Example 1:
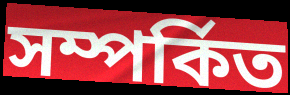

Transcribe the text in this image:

সম্পৰ্কিত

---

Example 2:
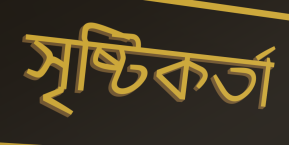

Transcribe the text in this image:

সৃষ্টিকৰ্তা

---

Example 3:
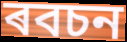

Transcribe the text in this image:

ৰবচন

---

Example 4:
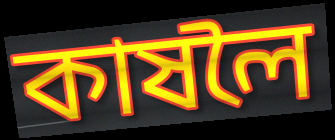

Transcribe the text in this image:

কাষলৈ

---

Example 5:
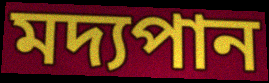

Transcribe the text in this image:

মদ্যপান